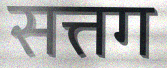
सत्तग